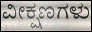
ವೀಕ್ಷಣಗಳು